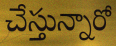
చేస్తున్నారో